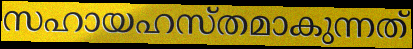
സഹായഹസ്തമാകുന്നത്